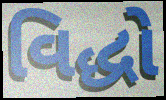
વિદ્ધો